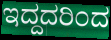
ಇದ್ದದರಿಂದ